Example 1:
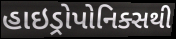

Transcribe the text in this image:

હાઇડ્રોપોનિક્સથી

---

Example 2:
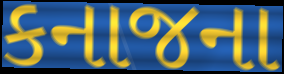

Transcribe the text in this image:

કનાજના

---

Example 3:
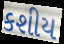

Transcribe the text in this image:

કશીય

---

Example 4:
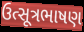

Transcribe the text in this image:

ઉત્સૂત્રભાષણ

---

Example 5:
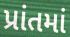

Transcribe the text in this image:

પ્રાંતમાં